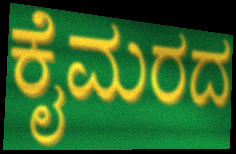
ಕೈಮರದ